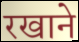
रखाने